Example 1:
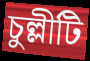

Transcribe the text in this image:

চুল্লীটি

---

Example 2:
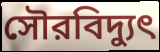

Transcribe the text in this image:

সৌরবিদ্যুৎ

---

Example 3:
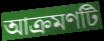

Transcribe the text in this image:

আক্রমণটি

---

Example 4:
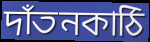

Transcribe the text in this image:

দাঁতনকাঠি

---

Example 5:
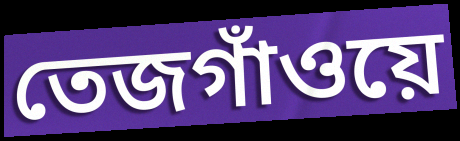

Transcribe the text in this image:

তেজগাঁওয়ে